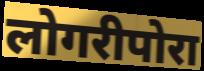
लोगरीपोरा